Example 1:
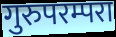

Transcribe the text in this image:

गुरुपरम्परा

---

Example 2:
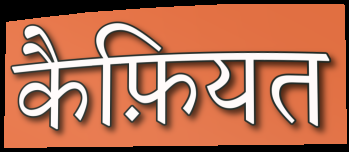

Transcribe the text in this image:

कैफ़ियत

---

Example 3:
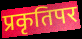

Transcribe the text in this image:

प्रकृतिपर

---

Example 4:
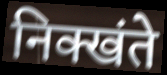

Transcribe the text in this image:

निक्खंते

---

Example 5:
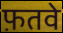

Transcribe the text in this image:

फ़तवे